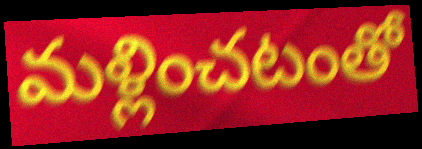
మళ్లించటంతో